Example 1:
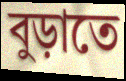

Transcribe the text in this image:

বুড়াতে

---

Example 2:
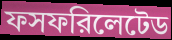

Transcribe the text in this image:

ফসফরিলেটেড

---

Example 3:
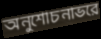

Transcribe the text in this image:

অনুশোচনাভরে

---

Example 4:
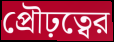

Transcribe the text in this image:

প্রৌঢ়ত্বের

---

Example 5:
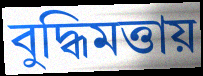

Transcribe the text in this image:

বুদ্ধিমত্তায়